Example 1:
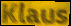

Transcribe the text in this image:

Klaus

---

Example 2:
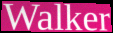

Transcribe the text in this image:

Walker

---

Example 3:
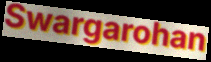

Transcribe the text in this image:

Swargarohan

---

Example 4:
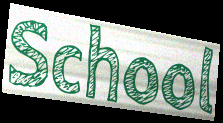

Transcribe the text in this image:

School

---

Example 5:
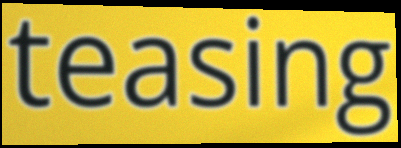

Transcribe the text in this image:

teasing